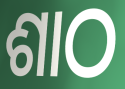
ଶାଠ